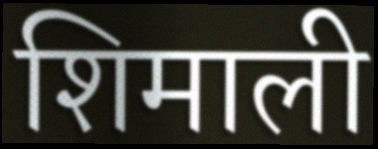
शिमाली